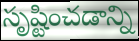
సృష్టించడాన్ని